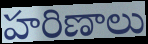
హరిణాలు